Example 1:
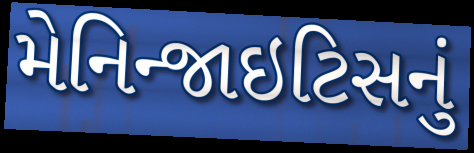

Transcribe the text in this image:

મેનિન્જાઇટિસનું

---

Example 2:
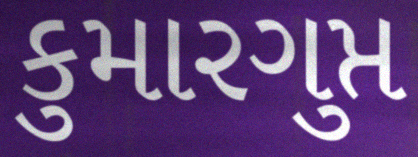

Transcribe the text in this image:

કુમારગુપ્ત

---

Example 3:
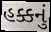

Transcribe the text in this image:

હક્કનું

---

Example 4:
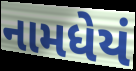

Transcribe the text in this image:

નામધેયં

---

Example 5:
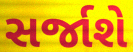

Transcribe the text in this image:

સર્જાશે